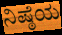
ನಿಷ್ಠೆಯ